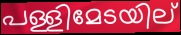
പള്ളിമേടയില്